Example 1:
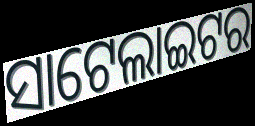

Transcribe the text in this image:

ସାଟେଲାଇଟର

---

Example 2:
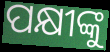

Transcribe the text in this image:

ପକ୍ଷୀଙ୍କୁ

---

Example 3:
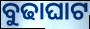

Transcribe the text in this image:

ବୁଢାଘାଟ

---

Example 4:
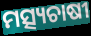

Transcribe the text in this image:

ମତ୍ସ୍ୟଚାଷୀ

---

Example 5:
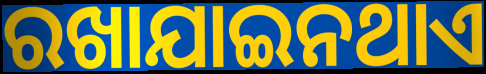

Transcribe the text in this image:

ରଖାଯାଇନଥାଏ